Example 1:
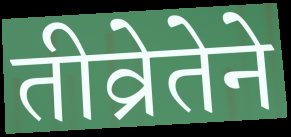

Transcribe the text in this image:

तीव्रेतेने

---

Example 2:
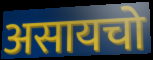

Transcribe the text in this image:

असायचो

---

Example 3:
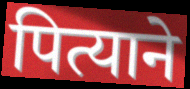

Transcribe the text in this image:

पित्याने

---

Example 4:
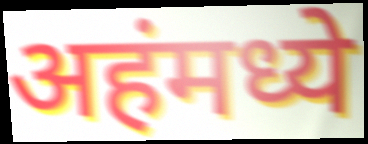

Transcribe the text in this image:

अहंमध्ये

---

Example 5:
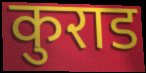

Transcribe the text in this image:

कुराड